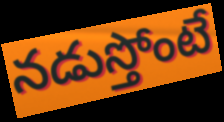
నడుస్తోంటే